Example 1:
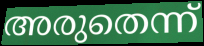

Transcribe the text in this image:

അരുതെന്ന്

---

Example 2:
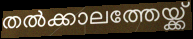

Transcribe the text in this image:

തൽക്കാലത്തേയ്ക്ക്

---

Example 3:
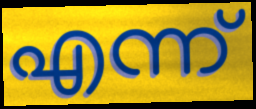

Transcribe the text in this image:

എന്ന്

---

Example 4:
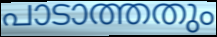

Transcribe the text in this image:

പാടാത്തതും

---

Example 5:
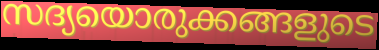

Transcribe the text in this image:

സദ്യയൊരുക്കങ്ങളുടെ